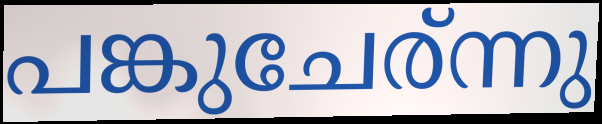
പങ്കുചേര്ന്നു